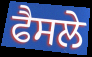
ਫੈਸਲੇ